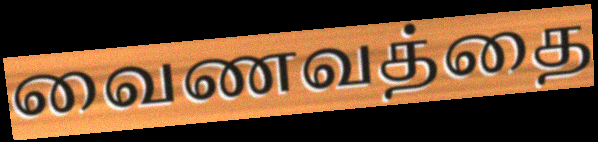
வைணவத்தை